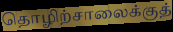
தொழிற்சாலைக்குத்